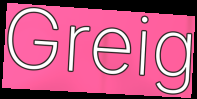
Greig